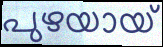
പുഴയായ്